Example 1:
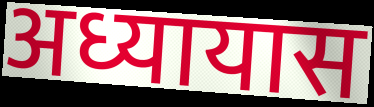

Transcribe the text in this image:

अध्यायास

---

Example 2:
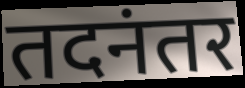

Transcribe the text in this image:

तदनंतर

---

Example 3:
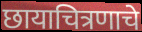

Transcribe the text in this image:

छायाचित्रणाचे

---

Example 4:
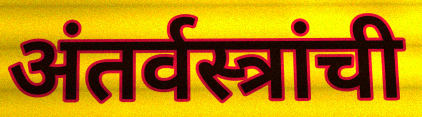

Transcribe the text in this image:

अंतर्वस्त्रांची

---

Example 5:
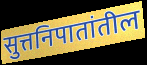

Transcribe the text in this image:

सुत्तनिपातांतील